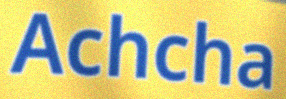
Achcha